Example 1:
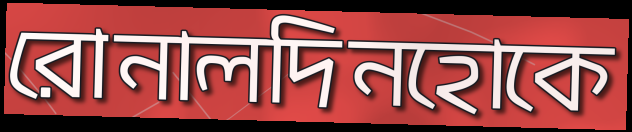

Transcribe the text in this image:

রোনালদিনহোকে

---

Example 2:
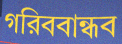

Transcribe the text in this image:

গরিববান্ধব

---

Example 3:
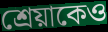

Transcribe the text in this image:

শ্রেয়াকেও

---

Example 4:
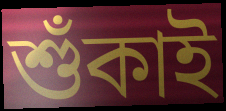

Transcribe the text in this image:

শুঁকাই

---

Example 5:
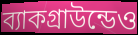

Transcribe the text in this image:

ব্যাকগ্রাউন্ডেও